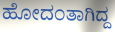
ಹೋದಂತಾಗಿದ್ದ